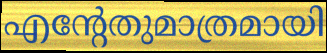
എന്റേതുമാത്രമായി